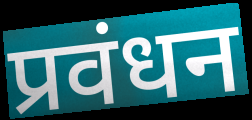
प्रवंधन